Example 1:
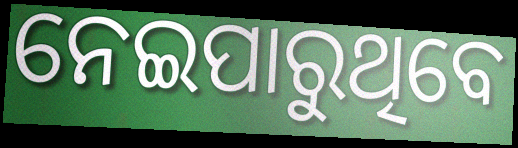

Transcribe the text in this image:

ନେଇପାରୁଥିବେ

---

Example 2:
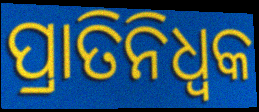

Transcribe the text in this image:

ପ୍ରାତିନିଧ୍ଵକ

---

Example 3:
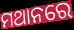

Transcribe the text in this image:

ମଥାନରେ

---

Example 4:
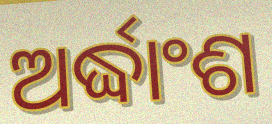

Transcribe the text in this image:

ଅର୍ଦ୍ଧାଂଶ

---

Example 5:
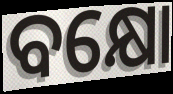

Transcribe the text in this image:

ବକ୍ଷୋ